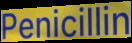
Penicillin